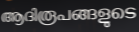
ആദിരൂപങ്ങളുടെ